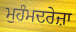
ਮੁਹੰਮਦਰੇਜ਼ਾ